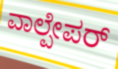
ವಾಲ್ಪೇಪರ್